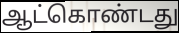
ஆட்கொண்டது